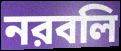
নরবলি